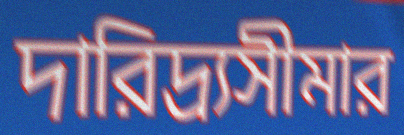
দারিদ্র্যসীমার